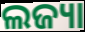
ଲଜ୍ୟା